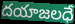
దయాజలధే